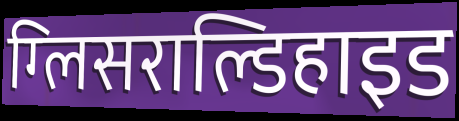
ग्लिसराल्डिहाइड